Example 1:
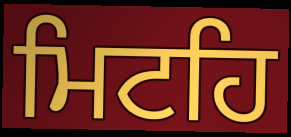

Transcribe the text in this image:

ਮਿਟਹਿ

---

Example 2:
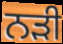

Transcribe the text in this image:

ਨੜੀ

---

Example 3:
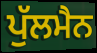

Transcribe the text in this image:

ਪੁੱਲਮੈਨ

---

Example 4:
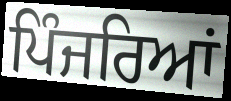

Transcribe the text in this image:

ਪਿੰਜਰਿਆਂ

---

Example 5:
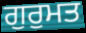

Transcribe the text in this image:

ਗੁਰੁਮਤ